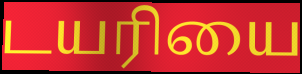
டயரியை